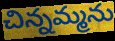
చిన్నమ్మను